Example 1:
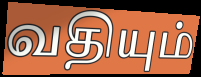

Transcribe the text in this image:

வதியும்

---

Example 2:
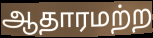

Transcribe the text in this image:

ஆதாரமற்ற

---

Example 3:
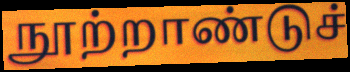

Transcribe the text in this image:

நூற்றாண்டுச்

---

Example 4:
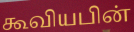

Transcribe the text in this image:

கூவியபின்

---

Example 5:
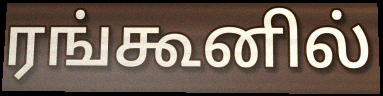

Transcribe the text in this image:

ரங்கூனில்